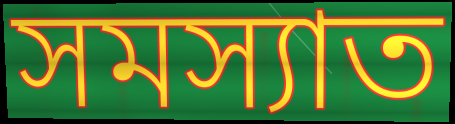
সমস্যাত